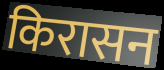
किरासन